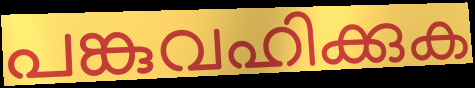
പങ്കുവഹിക്കുക